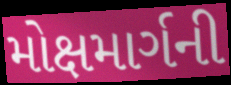
મોક્ષમાર્ગની